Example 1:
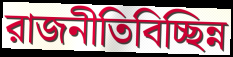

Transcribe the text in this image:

রাজনীতিবিচ্ছিন্ন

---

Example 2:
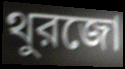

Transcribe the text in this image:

থুরজো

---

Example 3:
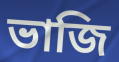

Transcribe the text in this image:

ভাজি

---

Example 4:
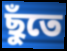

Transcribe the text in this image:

ছুঁতে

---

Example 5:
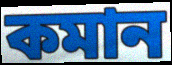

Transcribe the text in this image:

কমান